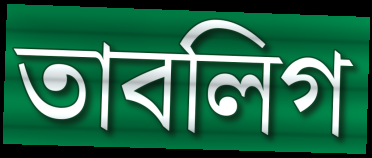
তাবলিগ